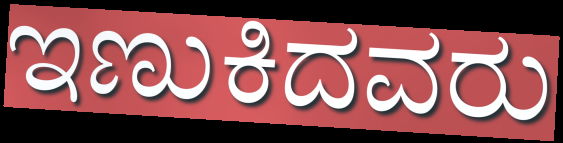
ಇಣುಕಿದವರು